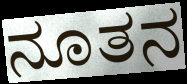
ನೂತನ